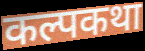
कल्पकथा